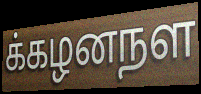
க்கழனநள